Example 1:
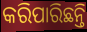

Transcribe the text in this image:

କରିପାରିଛନ୍ତି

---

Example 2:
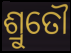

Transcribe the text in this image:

ଶ୍ରୁତୌ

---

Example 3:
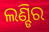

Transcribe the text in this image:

ଲଣ୍ଡିର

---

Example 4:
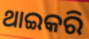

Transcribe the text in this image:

ଥାଇକରି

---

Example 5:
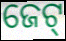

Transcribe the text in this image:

ଜେଟ୍